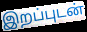
இறப்புடன்